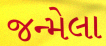
જન્મેલા